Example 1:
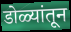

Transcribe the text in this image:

डोळ्यांतून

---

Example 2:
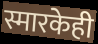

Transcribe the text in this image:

स्मारकेही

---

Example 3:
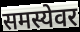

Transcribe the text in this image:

समस्येवर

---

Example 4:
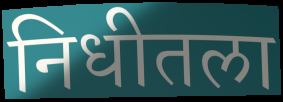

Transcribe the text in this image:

निधीतला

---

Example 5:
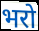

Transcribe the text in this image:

भरो